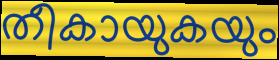
തീകായുകയും